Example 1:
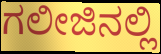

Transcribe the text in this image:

ಗಲೀಜಿನಲ್ಲಿ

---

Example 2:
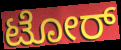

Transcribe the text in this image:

ಟೋರ್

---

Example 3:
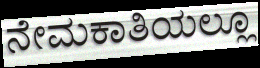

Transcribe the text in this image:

ನೇಮಕಾತಿಯಲ್ಲೂ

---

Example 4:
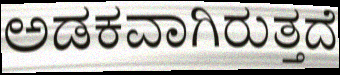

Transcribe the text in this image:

ಅಡಕವಾಗಿರುತ್ತದೆ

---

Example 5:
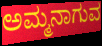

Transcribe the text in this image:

ಅಮ್ಮನಾಗುವ